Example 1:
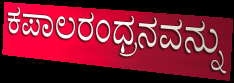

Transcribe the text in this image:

ಕಪಾಲರಂಧ್ರನವನ್ನು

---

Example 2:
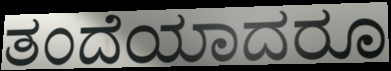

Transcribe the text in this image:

ತಂದೆಯಾದರೂ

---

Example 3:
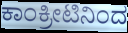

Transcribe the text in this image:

ಕಾಂಕ್ರೀಟಿನಿಂದ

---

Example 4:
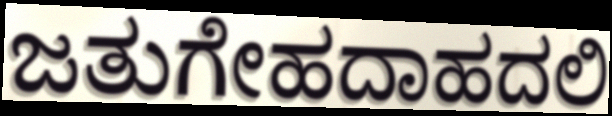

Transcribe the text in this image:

ಜತುಗೇಹದಾಹದಲಿ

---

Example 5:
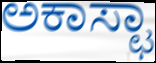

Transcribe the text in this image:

ಅಕಾಸ್ಟಾ